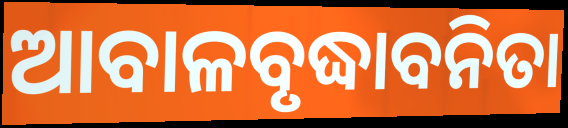
ଆବାଳବୃଦ୍ଧାବନିତା